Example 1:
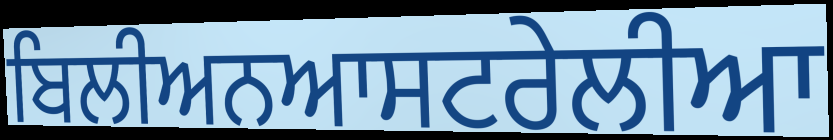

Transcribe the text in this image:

ਬਿਲੀਅਨਆਸਟਰੇਲੀਆ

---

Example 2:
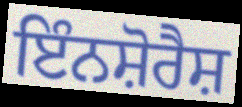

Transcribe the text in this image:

ਇੰਨਸ਼ੋਰੈਸ਼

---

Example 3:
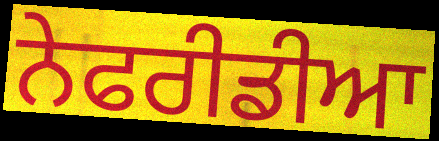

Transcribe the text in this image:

ਨੇਫਰੀਡੀਆ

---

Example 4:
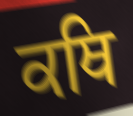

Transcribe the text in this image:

ਕਥਿ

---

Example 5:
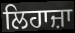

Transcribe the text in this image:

ਲਿਹਾਜ਼ਾ